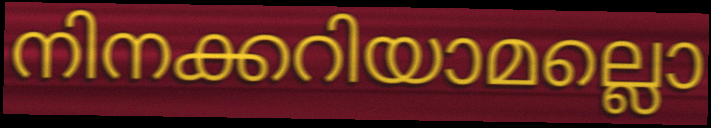
നിനക്കറിയാമല്ലൊ